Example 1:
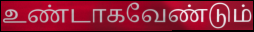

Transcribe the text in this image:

உண்டாகவேண்டும்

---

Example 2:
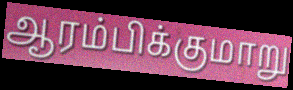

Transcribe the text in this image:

ஆரம்பிக்குமாறு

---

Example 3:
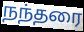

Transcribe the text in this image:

நந்தரை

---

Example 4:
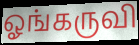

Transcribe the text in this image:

ஓங்கருவி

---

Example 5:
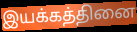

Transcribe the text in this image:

இயக்கத்தினை